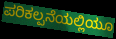
ಪರಿಕಲ್ಪನೆಯಲ್ಲಿಯೂ